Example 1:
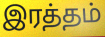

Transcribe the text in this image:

இரத்தம்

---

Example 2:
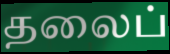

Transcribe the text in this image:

தலைப்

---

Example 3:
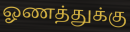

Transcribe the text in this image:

ஓணத்துக்கு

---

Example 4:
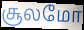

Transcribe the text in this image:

சூலமோ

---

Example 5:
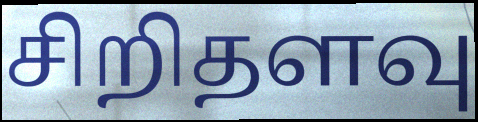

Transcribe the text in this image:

சிறிதளவு